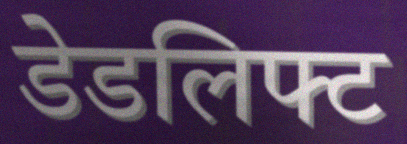
डेडलिफ्ट